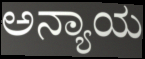
ಅನ್ಯಾಯ